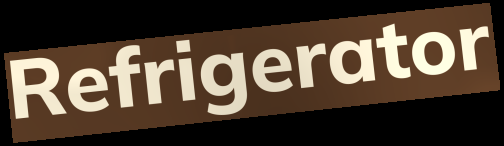
Refrigerator